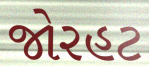
જોરહટ